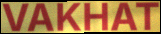
VAKHAT